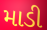
માડી